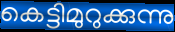
കെട്ടിമുറുക്കുന്നു